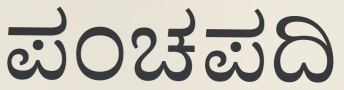
ಪಂಚಪದಿ